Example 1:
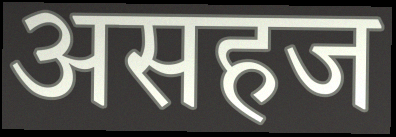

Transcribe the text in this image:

असहज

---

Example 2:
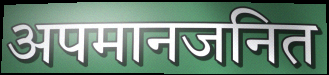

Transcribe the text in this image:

अपमानजनित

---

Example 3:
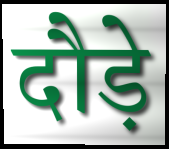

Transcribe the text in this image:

दौड़े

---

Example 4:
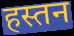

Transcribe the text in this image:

हस्तन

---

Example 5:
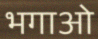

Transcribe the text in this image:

भगाओ